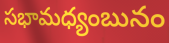
సభామధ్యంబునం